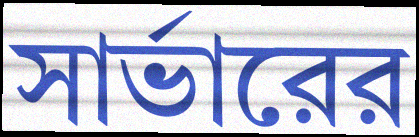
সার্ভারের